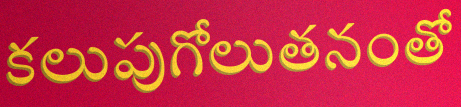
కలుపుగోలుతనంతో